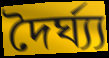
দৈৰ্ঘ্য্য